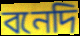
বনেদি